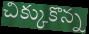
చిక్కుకొన్న